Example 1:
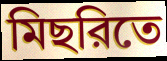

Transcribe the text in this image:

মিছরিতে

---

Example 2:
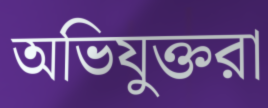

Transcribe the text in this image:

অভিযুক্তরা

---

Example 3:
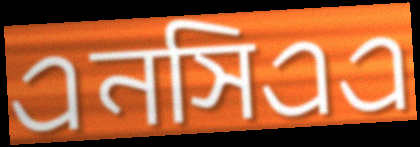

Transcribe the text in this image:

এনসিএএ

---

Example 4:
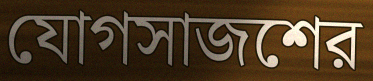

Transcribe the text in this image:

যোগসাজশের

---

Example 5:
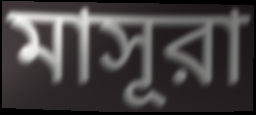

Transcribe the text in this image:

মাসূরা